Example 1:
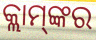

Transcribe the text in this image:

କ୍ଲାମ୍‌ଙ୍କର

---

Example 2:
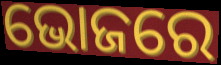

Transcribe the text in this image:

ଭୋଜରେ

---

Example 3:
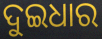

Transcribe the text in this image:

ଦୁଇଧାର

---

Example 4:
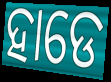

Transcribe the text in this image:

ହାଡେ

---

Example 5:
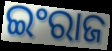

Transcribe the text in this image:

ଇଂରାଜ